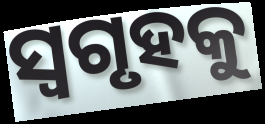
ସ୍ୱଗୃହକୁ